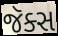
જૅક્સ